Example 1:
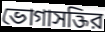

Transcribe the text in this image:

ভোগাসক্তির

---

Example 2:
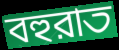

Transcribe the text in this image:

বহুরাত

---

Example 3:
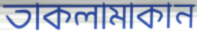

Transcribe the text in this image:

তাকলামাকান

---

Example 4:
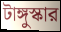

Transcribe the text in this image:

টাঙ্গুস্কার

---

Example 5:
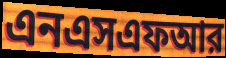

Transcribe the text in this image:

এনএসএফআর